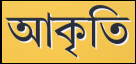
আকৃতি